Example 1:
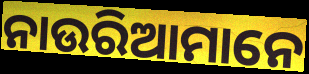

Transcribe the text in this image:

ନାଉରିଆମାନେ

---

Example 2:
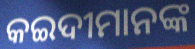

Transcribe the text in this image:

କଇଦୀମାନଙ୍କ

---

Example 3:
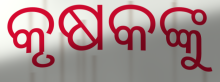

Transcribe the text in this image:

କୃଷକଙ୍କୁ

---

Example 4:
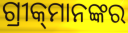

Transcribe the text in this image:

ଗ୍ରୀକ୍‌ମାନଙ୍କର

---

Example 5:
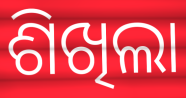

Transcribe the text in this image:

ଶିଖିଲା